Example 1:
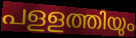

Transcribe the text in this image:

പളളത്തിയും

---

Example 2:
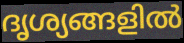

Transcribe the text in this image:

ദൃശ്യങ്ങളിൽ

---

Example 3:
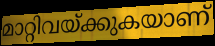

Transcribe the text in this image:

മാറ്റിവയ്ക്കുകയാണ്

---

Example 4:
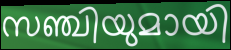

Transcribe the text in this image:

സഞ്ചിയുമായി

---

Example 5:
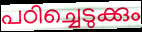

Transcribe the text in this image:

പഠിച്ചെടുക്കും